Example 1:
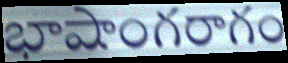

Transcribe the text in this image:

భాషాంగరాగం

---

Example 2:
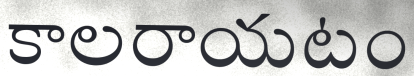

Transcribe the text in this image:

కాలరాయటం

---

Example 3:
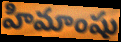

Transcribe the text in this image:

హిమాంషు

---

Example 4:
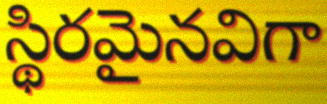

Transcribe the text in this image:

స్థిరమైనవిగా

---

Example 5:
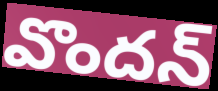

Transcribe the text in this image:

వొందన్